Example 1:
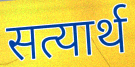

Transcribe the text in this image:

सत्यार्थ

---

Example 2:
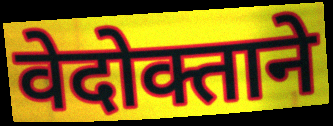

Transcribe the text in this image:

वेदोक्ताने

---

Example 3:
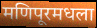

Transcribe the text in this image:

मणिपूरमधला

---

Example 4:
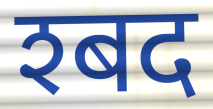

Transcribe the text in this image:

श्बद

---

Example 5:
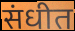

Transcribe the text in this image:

संधीत